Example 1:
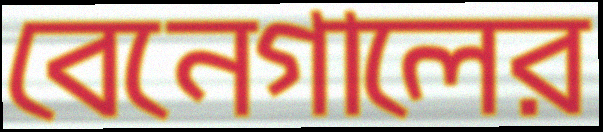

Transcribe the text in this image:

বেনেগালের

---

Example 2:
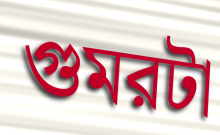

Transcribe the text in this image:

গুমরটা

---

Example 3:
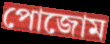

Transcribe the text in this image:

পোজোম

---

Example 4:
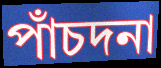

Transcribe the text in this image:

পাঁচদনা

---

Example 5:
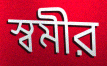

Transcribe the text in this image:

স্বমীর